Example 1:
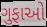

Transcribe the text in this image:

ગુફાઓ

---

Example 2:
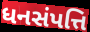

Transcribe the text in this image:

ધનસંપત્તિ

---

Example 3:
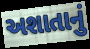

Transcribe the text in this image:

અશાતાનું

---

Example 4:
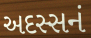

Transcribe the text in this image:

અદસ્સનં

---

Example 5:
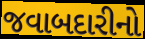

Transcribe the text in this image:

જવાબદારીનો